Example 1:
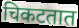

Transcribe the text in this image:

चिकटतात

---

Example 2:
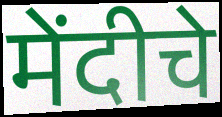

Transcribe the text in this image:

मेंदीचे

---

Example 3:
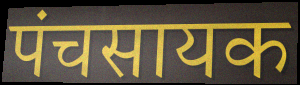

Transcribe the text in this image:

पंचसायक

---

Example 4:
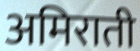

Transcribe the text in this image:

अमिराती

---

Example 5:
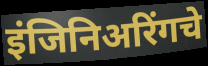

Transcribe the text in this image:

इंजिनिअरिंगचे